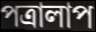
পত্ৰালাপ